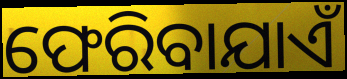
ଫେରିବାଯାଏଁ